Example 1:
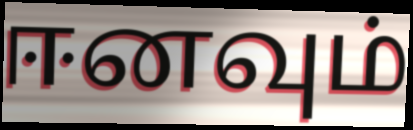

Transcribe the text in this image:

ஈனவும்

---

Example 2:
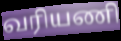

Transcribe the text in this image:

வரியணி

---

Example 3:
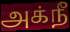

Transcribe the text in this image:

அக்நீ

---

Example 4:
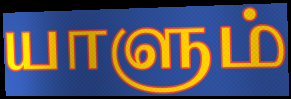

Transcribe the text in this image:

யாளும்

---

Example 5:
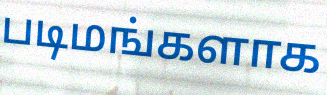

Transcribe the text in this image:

படிமங்களாக